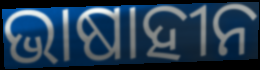
ଭାଷାହୀନ